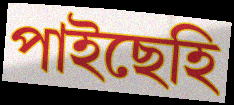
পাইছেহি